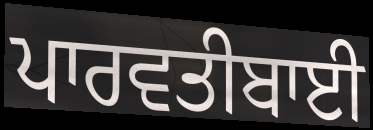
ਪਾਰਵਤੀਬਾਈ